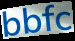
bbfc